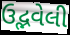
ઉદ્ભવેલી